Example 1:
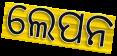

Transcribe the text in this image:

ଲେପନ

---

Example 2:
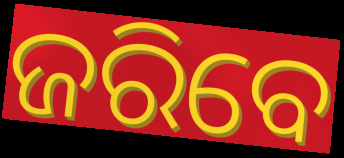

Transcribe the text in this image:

ଜରିବେ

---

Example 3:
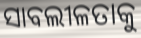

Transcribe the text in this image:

ସାବଲୀଳତାକୁ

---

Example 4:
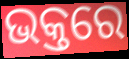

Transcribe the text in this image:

ଭକ୍ତରେ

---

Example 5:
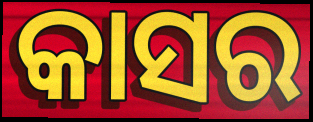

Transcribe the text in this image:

କାସର